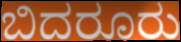
ಬಿದರೂರು